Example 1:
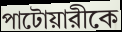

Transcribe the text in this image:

পাটোয়ারীকে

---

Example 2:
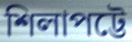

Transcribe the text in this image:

শিলাপট্টে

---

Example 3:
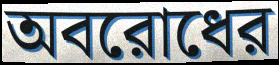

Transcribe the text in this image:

অবরোধের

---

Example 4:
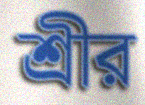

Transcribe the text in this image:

শ্রীর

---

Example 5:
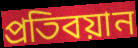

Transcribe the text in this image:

প্রতিবয়ান